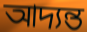
আদ্যন্ত